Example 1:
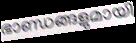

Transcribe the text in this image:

ഭാണ്ഡങ്ങളുമായി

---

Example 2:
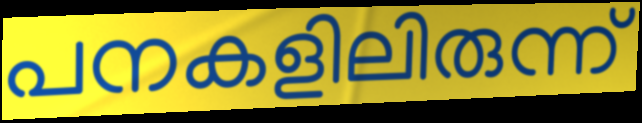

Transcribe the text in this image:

പനകളിലിരുന്ന്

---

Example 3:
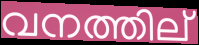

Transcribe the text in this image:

വനത്തില്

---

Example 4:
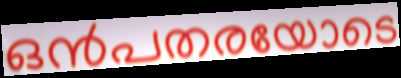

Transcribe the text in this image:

ഒൻപതരയോടെ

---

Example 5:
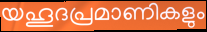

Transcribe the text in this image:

യഹൂദപ്രമാണികളും